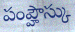
పంప్హౌస్కు